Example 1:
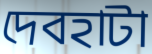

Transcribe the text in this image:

দেবহাটা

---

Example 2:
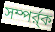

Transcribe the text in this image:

সম্পর্র্ক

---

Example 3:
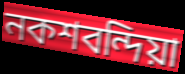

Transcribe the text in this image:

নকশবন্দিয়া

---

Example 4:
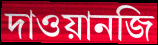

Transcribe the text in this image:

দাওয়ানজি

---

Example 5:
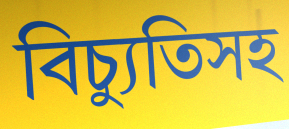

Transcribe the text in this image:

বিচ্যুতিসহ